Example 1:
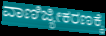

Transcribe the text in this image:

ವಾಣಿಜ್ಯೀಕರಣಕ್ಕೆ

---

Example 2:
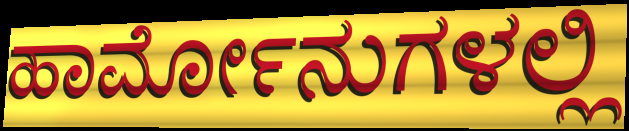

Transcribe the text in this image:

ಹಾರ್ಮೋನುಗಳಲ್ಲಿ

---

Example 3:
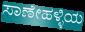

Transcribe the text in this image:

ಸಾಣೇಹಳ್ಳಿಯ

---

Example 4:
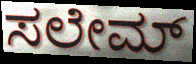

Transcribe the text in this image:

ಸಲೇಮ್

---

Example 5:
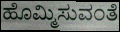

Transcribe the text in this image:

ಹೊಮ್ಮಿಸುವಂತೆ